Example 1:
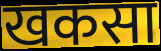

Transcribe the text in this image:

खकसा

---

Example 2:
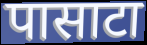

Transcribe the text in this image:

पासाटा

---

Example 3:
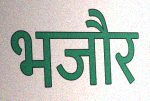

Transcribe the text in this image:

भजौर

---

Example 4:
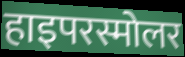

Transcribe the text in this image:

हाइपरस्मोलर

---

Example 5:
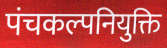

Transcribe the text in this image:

पंचकल्पनियुक्ति